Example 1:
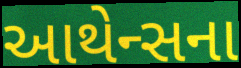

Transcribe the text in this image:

આથેન્સના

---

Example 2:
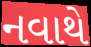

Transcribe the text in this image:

નવાથે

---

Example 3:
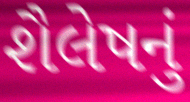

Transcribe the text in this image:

શૈલેષનું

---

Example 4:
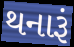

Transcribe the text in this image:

થનારૂં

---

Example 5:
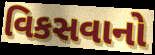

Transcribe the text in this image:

વિકસવાનો